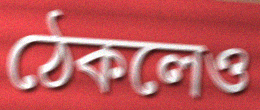
ঠেকলেও